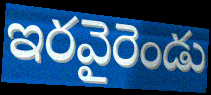
ఇరవైరెండు